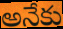
అనేకు